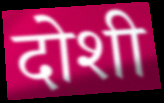
दोशी